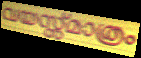
വയസ്സ്മാത്രം